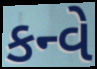
કન્વે